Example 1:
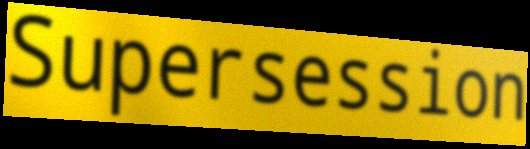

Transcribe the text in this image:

Supersession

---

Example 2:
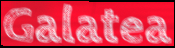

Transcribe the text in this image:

Galatea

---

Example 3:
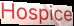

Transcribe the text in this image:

Hospice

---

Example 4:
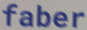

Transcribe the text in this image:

faber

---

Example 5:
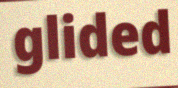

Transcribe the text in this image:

glided